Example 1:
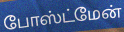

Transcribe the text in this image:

போஸ்ட்மேன்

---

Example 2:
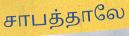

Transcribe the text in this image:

சாபத்தாலே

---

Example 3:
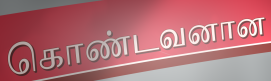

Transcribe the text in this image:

கொண்டவனான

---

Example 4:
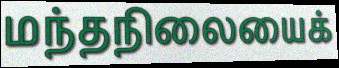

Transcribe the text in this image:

மந்தநிலையைக்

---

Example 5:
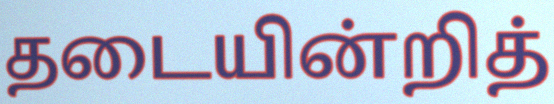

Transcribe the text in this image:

தடையின்றித்